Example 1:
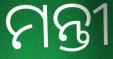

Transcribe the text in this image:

ମନ୍ତୀ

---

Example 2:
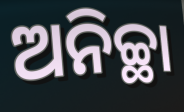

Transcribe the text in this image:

ଅନିଚ୍ଛା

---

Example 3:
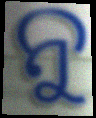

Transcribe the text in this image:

ନୁ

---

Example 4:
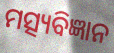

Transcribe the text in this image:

ମତ୍ସ୍ୟବିଜ୍ଞାନ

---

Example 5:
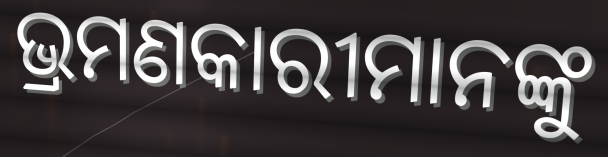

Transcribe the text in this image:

ଭ୍ରମଣକାରୀମାନଙ୍କୁ